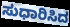
ಸುಧಾರಿಸಿದ